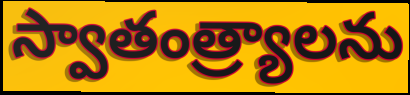
స్వాతంత్ర్యాలను